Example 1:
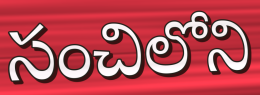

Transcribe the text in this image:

సంచిలోని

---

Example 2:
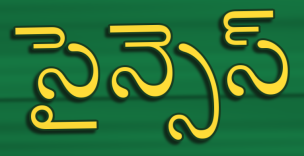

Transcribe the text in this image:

సైన్సెస్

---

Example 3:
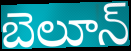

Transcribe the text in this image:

బెలూన్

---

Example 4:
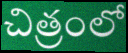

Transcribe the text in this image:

చిత్రంలో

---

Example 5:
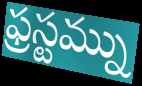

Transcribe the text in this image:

ఫ్రస్టమ్ను